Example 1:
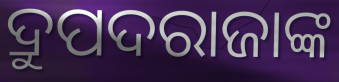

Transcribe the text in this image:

ଦ୍ରୁପଦରାଜାଙ୍କ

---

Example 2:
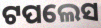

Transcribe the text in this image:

ଟପଲେସ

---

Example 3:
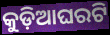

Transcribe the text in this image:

କୁଡ଼ିଆଘରଟି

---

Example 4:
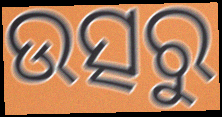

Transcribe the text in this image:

ଉତ୍ସରୁ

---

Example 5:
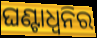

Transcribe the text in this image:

ଘଣ୍ଟାଧ୍ୱନିର